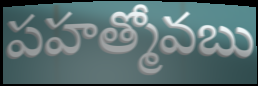
పహత్మోవబు